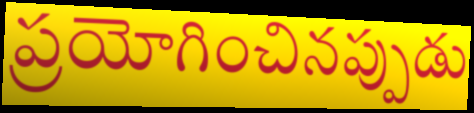
ప్రయోగించినప్పుడు